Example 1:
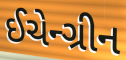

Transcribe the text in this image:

ઈચેન્ગ્રીન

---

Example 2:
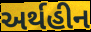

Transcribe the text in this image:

અર્થહીન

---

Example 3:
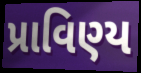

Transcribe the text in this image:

પ્રાવિણ્ય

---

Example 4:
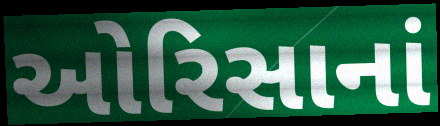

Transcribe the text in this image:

ઓરિસાનાં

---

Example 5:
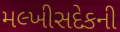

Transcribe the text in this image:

મલ્ખીસદેકની